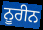
ਨੂਰੀਨ